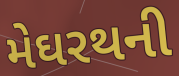
મેઘરથની